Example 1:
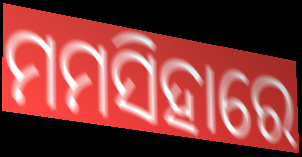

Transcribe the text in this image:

ମମସିହାରେ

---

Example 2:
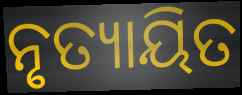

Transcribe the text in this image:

ନୃତ୍ୟାୟିତ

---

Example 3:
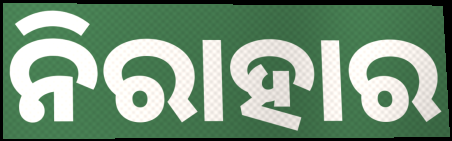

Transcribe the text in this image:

ନିରାହାର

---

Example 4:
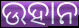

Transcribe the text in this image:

ଉହାନ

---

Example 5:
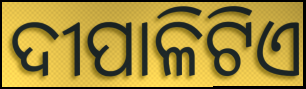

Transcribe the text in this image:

ଦୀପାଳିଟିଏ